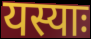
यस्याः